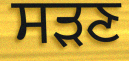
ਸੜਣ